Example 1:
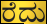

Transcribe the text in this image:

ರೆದು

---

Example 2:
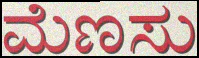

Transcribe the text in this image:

ಮೆಣಸು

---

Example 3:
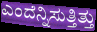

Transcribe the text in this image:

ಎಂದೆನ್ನಿಸುತ್ತಿತ್ತು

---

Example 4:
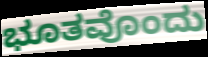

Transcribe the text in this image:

ಭೂತವೊಂದು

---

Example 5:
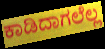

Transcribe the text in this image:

ಕಾಡಿದಾಗಲೆಲ್ಲ